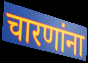
चारणांना